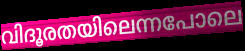
വിദൂരതയിലെന്നപോലെ